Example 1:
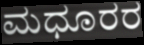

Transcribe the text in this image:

ಮಧೂರರ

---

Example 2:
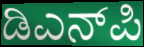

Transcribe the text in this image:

ಡಿಎನ್‌ಪಿ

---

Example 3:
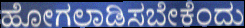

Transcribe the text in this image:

ಹೋಗಲಾಡಿಸಬೇಕೆಂದು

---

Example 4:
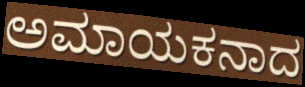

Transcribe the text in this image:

ಅಮಾಯಕನಾದ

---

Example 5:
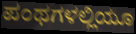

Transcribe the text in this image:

ಪಂಥಗಳಲ್ಲಿಯೂ